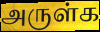
அருள்க